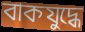
বাকযুদ্ধে